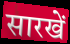
सारखें